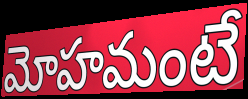
మోహమంటే